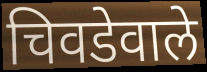
चिवडेवाले